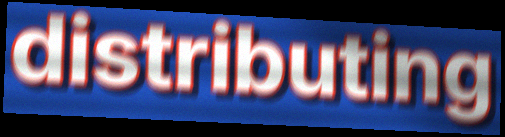
distributing